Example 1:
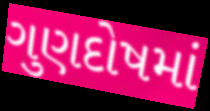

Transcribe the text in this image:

ગુણદોષમાં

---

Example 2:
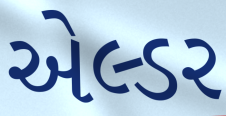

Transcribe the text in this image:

એલ્ડર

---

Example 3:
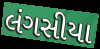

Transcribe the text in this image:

લંગસીયા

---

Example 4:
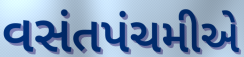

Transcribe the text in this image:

વસંતપંચમીએ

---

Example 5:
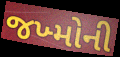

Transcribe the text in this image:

જખ્મોની